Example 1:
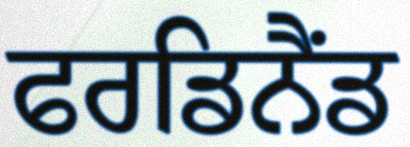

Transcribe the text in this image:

ਫਰਡਿਨੈਂਡ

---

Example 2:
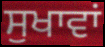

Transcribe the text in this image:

ਸੁਖਾਵਾਂ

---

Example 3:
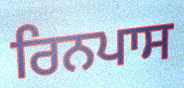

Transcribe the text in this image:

ਰਿਨਪਾਸ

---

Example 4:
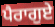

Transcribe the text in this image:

ਪੈਰਾਗੁਏ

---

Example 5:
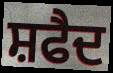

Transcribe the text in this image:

ਸ਼ਫੈਦ